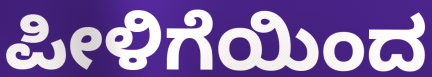
ಪೀಳಿಗೆಯಿಂದ